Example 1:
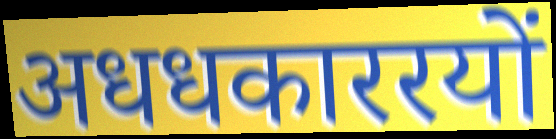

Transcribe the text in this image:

अधधकाररयों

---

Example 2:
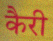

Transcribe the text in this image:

कैरी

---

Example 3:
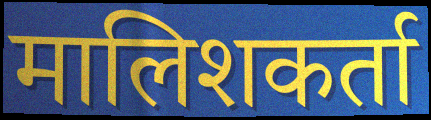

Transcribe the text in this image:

मालिशकर्ता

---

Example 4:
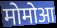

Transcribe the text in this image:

मोमोआ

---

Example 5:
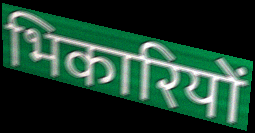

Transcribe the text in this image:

भिकारियों